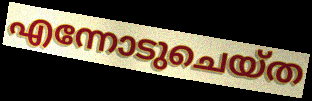
എന്നോടുചെയ്ത